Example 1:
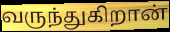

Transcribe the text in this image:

வருந்துகிறான்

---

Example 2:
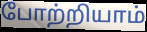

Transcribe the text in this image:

போற்றியாம்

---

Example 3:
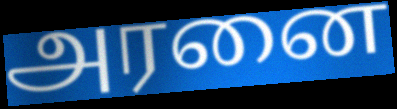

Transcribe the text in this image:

அரனை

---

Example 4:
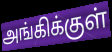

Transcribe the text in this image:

அங்கிக்குள்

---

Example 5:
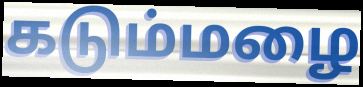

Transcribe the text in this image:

கடும்மழை